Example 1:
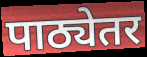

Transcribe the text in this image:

पाठ्येतर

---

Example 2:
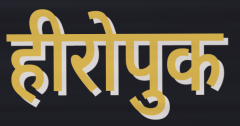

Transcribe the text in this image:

हीरोपुक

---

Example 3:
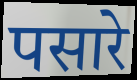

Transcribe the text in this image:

पसारे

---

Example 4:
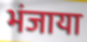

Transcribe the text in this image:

भंजाया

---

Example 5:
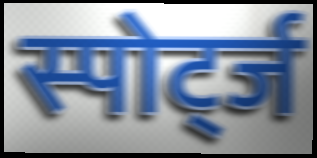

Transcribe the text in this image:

स्पोर्ट्ज